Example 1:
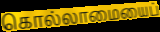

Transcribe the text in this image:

கொல்லாமையைப்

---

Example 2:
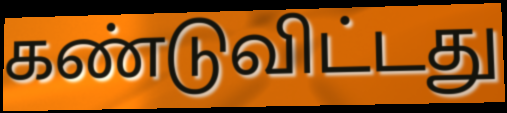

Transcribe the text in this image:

கண்டுவிட்டது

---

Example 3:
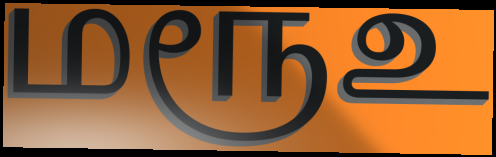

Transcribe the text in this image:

மரூஉ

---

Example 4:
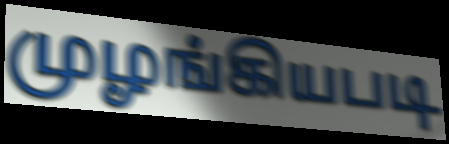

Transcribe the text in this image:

முழங்கியபடி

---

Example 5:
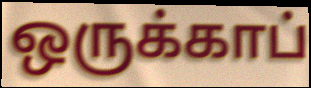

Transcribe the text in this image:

ஒருக்காப்